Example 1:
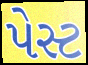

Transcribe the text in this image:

પેસ્ટ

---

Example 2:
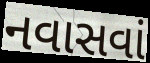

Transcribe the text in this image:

નવાસવાં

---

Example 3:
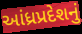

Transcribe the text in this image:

આંધ્રપ્રદેશનું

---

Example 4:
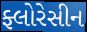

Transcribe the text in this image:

ફ્લોરેસીન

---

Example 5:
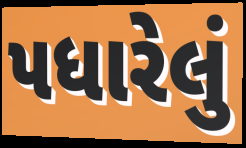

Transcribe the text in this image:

પધારેલું